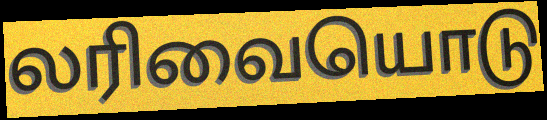
லரிவையொடு